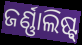
ଜର୍ଣ୍ଣାଲିଷ୍ଟ୍